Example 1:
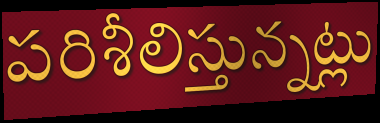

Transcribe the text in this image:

పరిశీలిస్తున్నట్లు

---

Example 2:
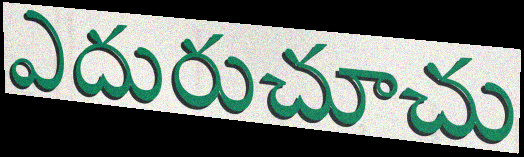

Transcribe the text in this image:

ఎదురుచూచు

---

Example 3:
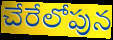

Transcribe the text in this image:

చేరేలోపున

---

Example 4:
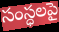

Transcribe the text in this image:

సంస్ధలపై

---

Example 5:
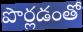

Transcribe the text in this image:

పొర్లడంతో